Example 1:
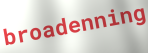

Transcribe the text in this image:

broadenning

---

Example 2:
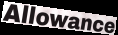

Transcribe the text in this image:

Allowance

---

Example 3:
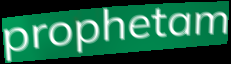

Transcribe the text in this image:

prophetam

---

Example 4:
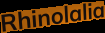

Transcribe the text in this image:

Rhinolalia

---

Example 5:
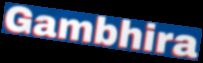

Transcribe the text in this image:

Gambhira